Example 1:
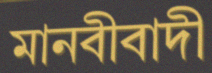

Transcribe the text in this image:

মানবীবাদী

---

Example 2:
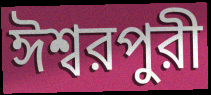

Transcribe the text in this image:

ঈশ্বরপুরী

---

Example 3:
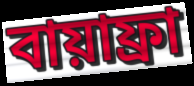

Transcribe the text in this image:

বায়াফ্রা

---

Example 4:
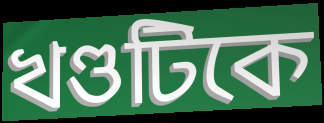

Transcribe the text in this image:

খণ্ডটিকে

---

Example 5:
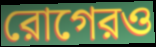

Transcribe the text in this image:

রোগেরও